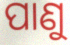
ପାଣୁ